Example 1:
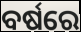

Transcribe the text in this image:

ବର୍ଷରେ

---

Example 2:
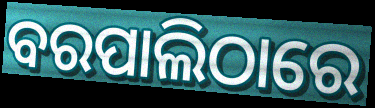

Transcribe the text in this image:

ବରପାଲିଠାରେ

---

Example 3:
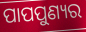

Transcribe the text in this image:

ପାପପୁଣ୍ୟର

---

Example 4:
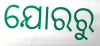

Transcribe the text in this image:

ଯୋରରୁ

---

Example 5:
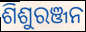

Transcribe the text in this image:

ଶିଶୁରଞ୍ଜନ